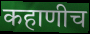
कहाणीच